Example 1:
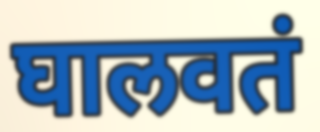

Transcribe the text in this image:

घालवतं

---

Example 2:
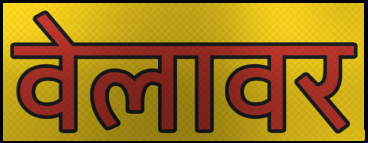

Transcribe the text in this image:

वेलावर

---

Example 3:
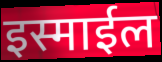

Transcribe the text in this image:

इस्माईल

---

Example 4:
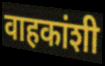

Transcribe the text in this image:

वाहकांशी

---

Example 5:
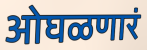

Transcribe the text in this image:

ओघळणारं